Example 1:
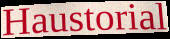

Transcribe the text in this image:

Haustorial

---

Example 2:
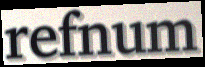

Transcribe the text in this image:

refnum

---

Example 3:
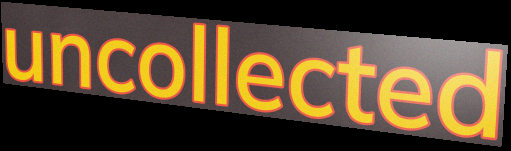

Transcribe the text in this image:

uncollected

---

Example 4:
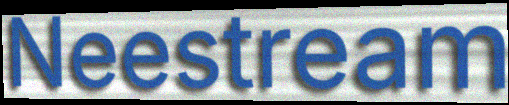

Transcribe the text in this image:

Neestream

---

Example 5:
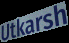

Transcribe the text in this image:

Utkarsh